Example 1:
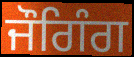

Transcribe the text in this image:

ਜੌਗਿੰਗ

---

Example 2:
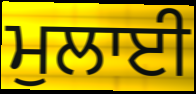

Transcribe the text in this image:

ਮੁਲਾਈ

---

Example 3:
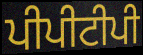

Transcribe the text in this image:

ਪੀਪੀਟੀਪੀ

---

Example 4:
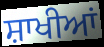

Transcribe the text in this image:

ਸ਼ਾਖੀਆਂ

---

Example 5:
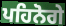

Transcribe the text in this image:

ਪਹਿਨੋਗੇ